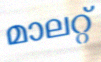
മാലറ്റ്